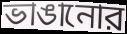
ভাঙানোর